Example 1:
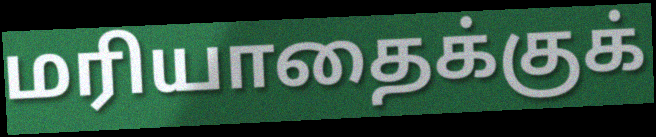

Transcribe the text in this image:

மரியாதைக்குக்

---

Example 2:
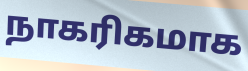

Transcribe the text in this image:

நாகரிகமாக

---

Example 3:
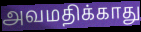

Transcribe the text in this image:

அவமதிக்காது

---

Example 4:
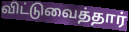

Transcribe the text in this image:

விட்டுவைத்தார்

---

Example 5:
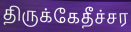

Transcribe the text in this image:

திருக்கேதீச்சர